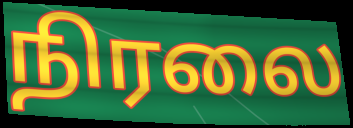
நிரலை